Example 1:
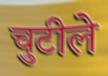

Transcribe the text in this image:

चुटीले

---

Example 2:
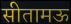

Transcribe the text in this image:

सीतामऊ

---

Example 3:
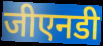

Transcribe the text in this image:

जीएनडी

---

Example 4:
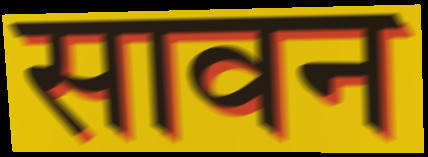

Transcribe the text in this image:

सावन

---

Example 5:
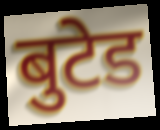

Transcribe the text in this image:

बुटेड